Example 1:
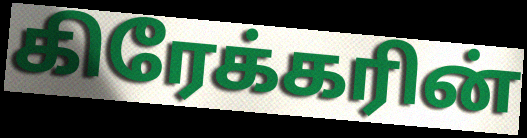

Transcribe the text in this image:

கிரேக்கரின்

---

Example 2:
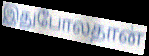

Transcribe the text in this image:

இதுபோலதான்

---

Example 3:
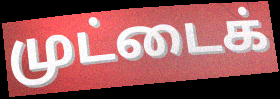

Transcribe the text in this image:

முட்டைக்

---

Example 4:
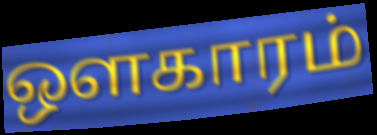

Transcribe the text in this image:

ஔகாரம்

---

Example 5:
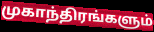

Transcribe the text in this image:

முகாந்திரங்களும்